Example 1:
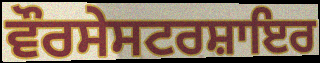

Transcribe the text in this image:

ਵੌਰਸੇਸਟਰਸ਼ਾਇਰ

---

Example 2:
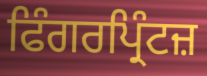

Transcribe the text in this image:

ਫਿੰਗਰਪ੍ਰਿੰਟਜ਼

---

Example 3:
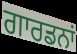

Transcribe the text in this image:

ਗਾਰਡਨਾਂ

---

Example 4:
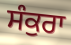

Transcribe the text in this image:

ਸੰਕੁਰਾ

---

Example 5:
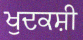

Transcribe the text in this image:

ਖੁਦਕਸ਼ੀ